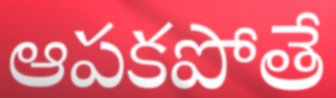
ఆపకపోతే